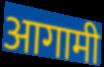
आगामी